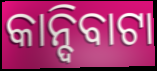
କାନ୍ଦିବାଟା